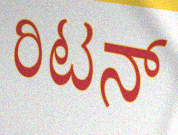
ರಿಟನ್